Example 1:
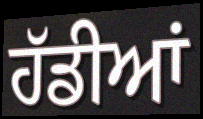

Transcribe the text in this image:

ਹੱਡੀਆਂ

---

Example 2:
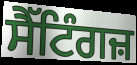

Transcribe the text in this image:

ਸੈੱਟਿੰਗਜ਼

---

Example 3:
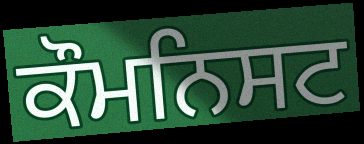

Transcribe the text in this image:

ਕੌਮਨਿਸਟ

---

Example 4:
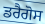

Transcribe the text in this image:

ਡਰੈਗੋਸ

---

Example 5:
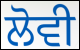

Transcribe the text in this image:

ਲੋਵੀ